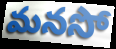
మనసో